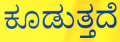
ಕೂಡುತ್ತದೆ